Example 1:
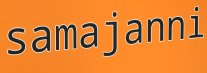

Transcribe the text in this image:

samajanni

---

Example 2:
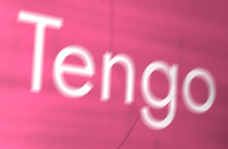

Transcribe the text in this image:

Tengo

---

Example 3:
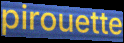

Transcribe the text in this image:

pirouette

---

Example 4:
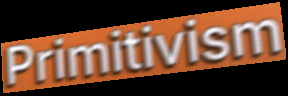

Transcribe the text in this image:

Primitivism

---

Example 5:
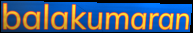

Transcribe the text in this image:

balakumaran